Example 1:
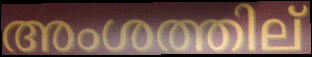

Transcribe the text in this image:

അംശത്തില്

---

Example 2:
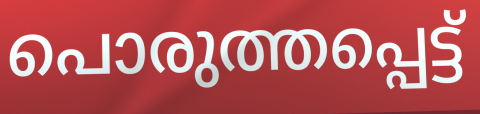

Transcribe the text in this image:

പൊരുത്തപ്പെട്ട്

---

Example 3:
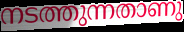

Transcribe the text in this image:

നടത്തുന്നതാണു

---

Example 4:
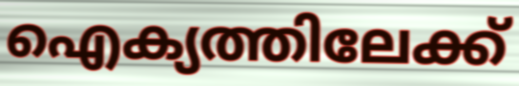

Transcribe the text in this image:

ഐക്യത്തിലേക്ക്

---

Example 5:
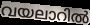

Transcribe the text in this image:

വയലാറിൽ